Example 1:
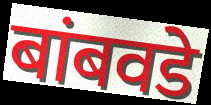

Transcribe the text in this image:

बांबवडे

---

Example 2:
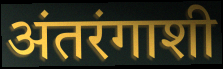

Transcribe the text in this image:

अंतरंगाशी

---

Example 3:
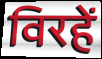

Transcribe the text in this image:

विरहें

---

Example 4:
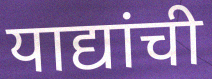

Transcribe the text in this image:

याद्यांची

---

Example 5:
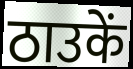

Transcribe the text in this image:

ठाउकें